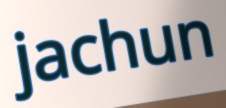
jachun